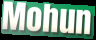
Mohun